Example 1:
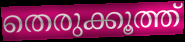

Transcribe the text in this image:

തെരുക്കൂത്ത്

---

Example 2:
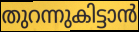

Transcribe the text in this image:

തുറന്നുകിട്ടാൻ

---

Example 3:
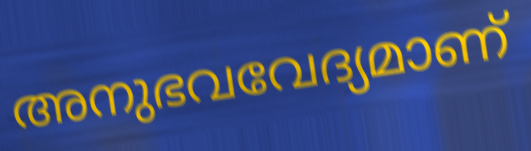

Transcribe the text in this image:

അനുഭവവേദ്യമാണ്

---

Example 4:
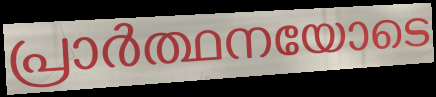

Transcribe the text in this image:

പ്രാർത്ഥനയോടെ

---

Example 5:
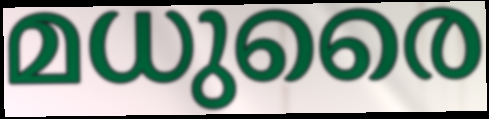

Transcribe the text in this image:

മധുരൈ